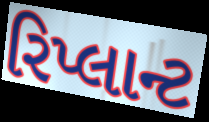
રિપ્લાન્ટ